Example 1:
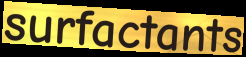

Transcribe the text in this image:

surfactants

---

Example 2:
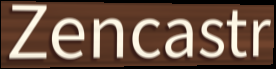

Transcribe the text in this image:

Zencastr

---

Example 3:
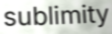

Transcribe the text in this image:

sublimity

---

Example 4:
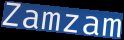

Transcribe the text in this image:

Zamzam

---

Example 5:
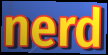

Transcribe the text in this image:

nerd